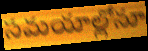
సమయాల్లోనూ